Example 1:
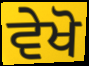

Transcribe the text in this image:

ਵੇਖੋ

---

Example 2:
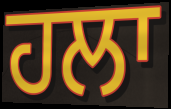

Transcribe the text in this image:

ਹਲਾ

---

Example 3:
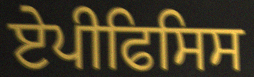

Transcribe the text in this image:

ਏਪੀਫਿਸਿਸ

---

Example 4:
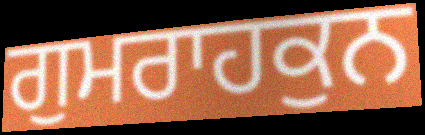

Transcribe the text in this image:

ਗੁਮਰਾਹਕੁਨ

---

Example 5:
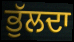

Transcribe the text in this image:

ਭੁੱਲਦਾ